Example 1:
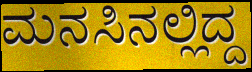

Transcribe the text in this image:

ಮನಸಿನಲ್ಲಿದ್ದ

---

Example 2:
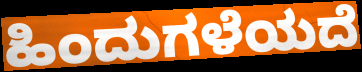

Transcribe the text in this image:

ಹಿಂದುಗಳೆಯದೆ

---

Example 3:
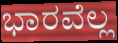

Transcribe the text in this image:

ಭಾರವೆಲ್ಲ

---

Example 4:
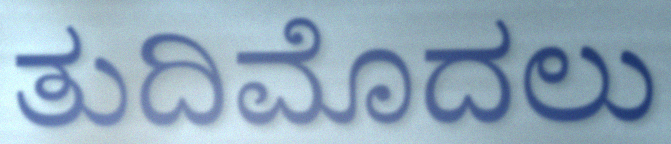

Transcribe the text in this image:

ತುದಿಮೊದಲು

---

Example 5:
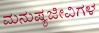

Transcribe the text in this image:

ಮನುಷ್ಯಜೀವಿಗಳ